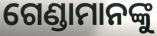
ଗେଣ୍ଡାମାନଙ୍କୁ